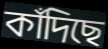
কাঁদিছে